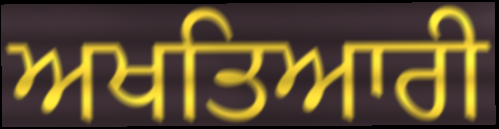
ਅਖਤਿਆਰੀ